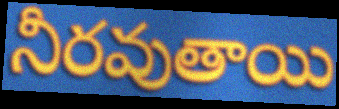
నీరవుతాయి